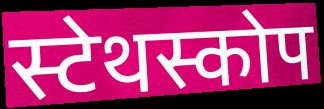
स्टेथस्कोप